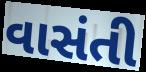
વાસંતી